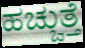
ಹಚ್ಚುತ್ತೆ